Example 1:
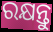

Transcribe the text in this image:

ରକ୍ଷନ୍ତୁ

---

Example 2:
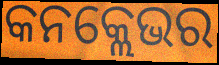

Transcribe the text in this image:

କନକ୍ଲେଭର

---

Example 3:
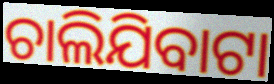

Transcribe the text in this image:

ଚାଲିଯିବାଟା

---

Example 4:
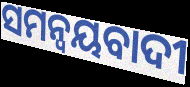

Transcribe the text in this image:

ସମନ୍ୱୟବାଦୀ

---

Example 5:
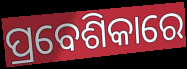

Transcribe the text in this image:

ପ୍ରବେଶିକାରେ